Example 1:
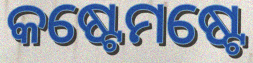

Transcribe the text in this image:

କଷ୍ଟେମଷ୍ଟେ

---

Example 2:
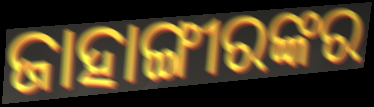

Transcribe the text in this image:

ଜାହାଙ୍ଗୀରଙ୍କର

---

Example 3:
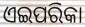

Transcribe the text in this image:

ଏଇପରିକା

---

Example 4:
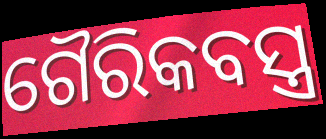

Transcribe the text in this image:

ଗୈରିକବସ୍ତ୍ର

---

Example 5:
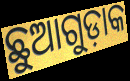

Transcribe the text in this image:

ଛୁଆଗୁଡ଼ାକ